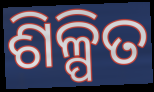
ଶିଳ୍ପିତ